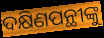
ଦକ୍ଷିଣପନ୍ଥୀଙ୍କୁ